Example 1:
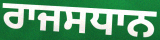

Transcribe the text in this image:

ਰਾਜਸਧਾਨ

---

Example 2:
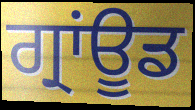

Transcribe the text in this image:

ਗ੍ਰਾਂਊਡ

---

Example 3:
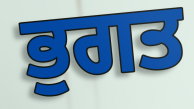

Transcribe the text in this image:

ਭੁਗਤ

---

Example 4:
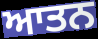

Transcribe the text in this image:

ਆਤਨ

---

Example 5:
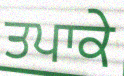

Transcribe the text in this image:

ਤਪਾਕੇ